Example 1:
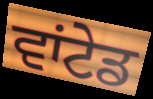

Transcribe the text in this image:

ਵਾਂਟੇਡ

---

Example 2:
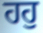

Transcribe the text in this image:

ਹਹੁ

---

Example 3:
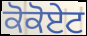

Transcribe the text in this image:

ਕੋਕੋਏਟ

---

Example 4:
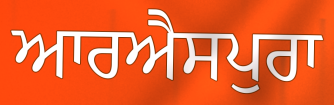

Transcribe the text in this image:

ਆਰਐਸਪੁਰਾ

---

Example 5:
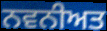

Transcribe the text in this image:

ਨਵਨੀਅਤ